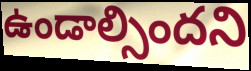
ఉండాల్సిందని